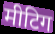
मीटिग